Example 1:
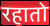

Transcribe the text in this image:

रहातो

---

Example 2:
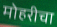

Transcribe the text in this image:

मोहरीचा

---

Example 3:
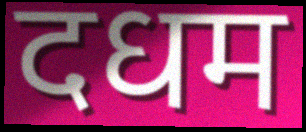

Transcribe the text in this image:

दधम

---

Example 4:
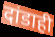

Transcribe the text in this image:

दांडाही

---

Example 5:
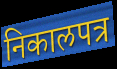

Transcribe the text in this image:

निकालपत्र